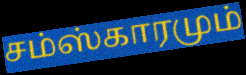
சம்ஸ்காரமும்